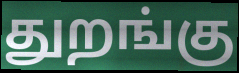
துறங்கு